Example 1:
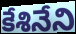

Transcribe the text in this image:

కేశినేని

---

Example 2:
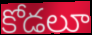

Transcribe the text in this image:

కోడలూ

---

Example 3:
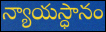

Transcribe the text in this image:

న్యాయస్ధానం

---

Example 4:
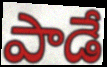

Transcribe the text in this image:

పాడే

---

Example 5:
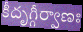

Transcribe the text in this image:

కీదృగ్గీర్వాణః